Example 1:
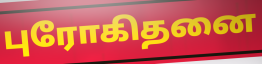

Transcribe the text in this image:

புரோகிதனை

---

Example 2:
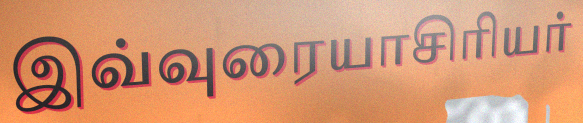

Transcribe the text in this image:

இவ்வுரையாசிரியர்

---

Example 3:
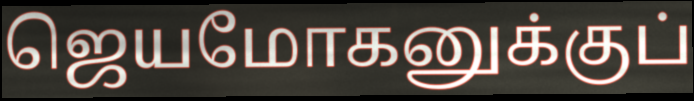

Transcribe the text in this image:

ஜெயமோகனுக்குப்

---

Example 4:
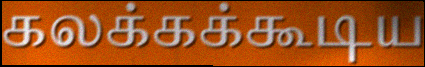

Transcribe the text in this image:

கலக்கக்கூடிய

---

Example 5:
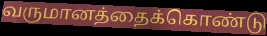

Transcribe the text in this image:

வருமானத்தைக்கொண்டு